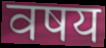
वषय